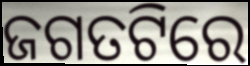
ଜଗତଟିରେ